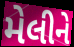
મેલીને